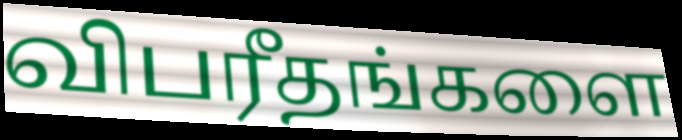
விபரீதங்களை